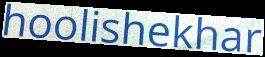
hoolishekhar